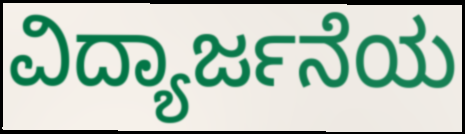
ವಿದ್ಯಾರ್ಜನೆಯ